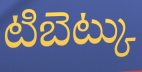
టిబెట్కు